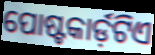
ପୋଷ୍ଟକାର୍ଡ଼ଟିଏ